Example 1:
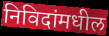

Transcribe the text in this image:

निविदांमधील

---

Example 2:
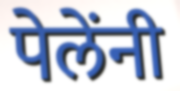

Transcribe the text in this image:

पेलेंनी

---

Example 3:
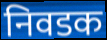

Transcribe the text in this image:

निवडक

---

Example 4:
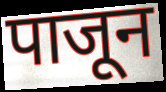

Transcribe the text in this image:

पाजून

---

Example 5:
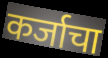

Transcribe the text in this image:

कर्जाचा